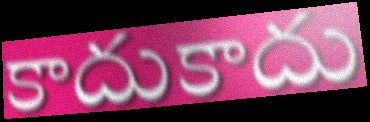
కాదుకాదు